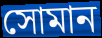
সোমান